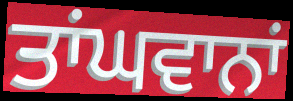
ਤਾਂਘਵਾਨਾਂ